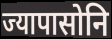
ज्यापासोनि